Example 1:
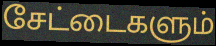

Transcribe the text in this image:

சேட்டைகளும்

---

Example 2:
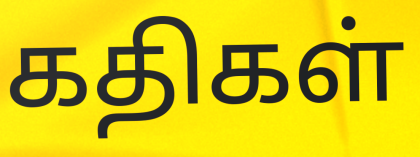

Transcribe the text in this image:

கதிகள்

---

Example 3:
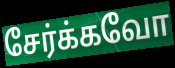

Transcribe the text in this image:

சேர்க்கவோ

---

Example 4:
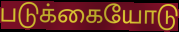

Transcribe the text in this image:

படுக்கையோடு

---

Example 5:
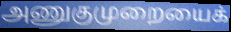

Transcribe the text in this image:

அணுகுமுறையைக்